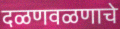
दळणवळणाचे